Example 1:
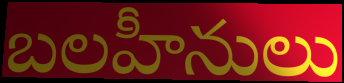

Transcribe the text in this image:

బలహీనులు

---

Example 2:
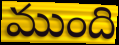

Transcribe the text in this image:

ముంది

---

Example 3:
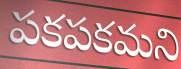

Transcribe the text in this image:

పకపకమని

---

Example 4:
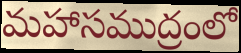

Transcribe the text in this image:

మహాసముద్రంలో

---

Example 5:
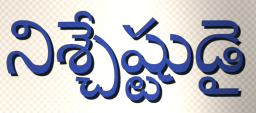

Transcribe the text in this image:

నిశ్చేష్టుడై